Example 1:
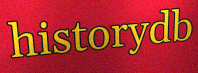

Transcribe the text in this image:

historydb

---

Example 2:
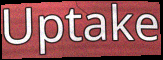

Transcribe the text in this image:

Uptake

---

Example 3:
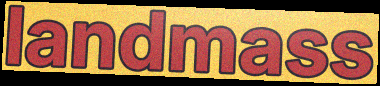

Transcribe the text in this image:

landmass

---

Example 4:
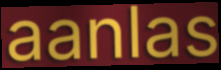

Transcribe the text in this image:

aanlas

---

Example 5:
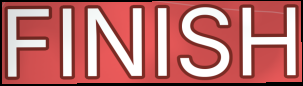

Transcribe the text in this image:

FINISH